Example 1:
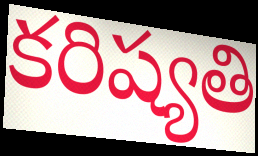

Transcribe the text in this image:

కరిష్యతి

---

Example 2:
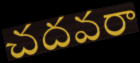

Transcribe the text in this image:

చదవరా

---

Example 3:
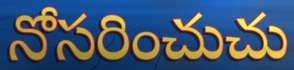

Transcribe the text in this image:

నోసరించుచు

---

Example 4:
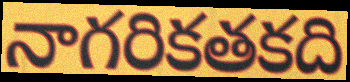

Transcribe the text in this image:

నాగరికతకది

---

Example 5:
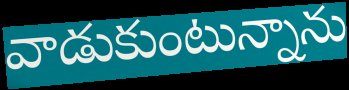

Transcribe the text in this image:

వాడుకుంటున్నాను